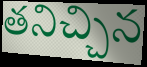
తనిచ్చిన